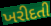
ખરીદતી